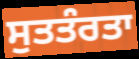
ਸੁਤਤੰਰਤਾ